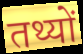
तथ्यों